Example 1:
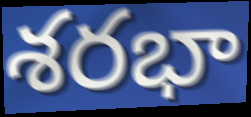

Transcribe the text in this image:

శరభా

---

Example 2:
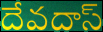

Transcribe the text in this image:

దేవదాస్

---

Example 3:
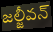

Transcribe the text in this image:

జల్జీవన్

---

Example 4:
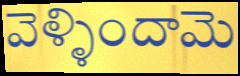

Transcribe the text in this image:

వెళ్ళిందామె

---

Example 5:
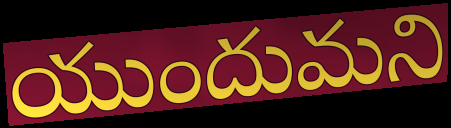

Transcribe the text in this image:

యుందుమని